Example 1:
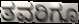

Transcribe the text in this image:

ತವರಿಗೂ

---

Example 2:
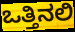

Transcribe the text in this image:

ಒತ್ತಿನಲಿ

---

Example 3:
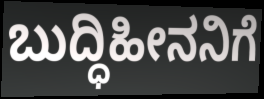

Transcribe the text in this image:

ಬುದ್ಧಿಹೀನನಿಗೆ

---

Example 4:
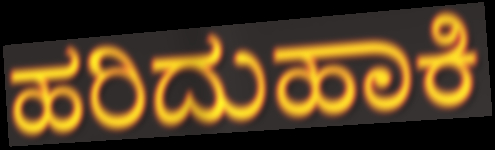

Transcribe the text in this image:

ಹರಿದುಹಾಕಿ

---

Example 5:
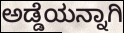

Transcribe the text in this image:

ಅಡ್ಡೆಯನ್ನಾಗಿ